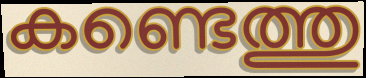
കണ്ടെത്തു